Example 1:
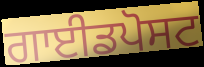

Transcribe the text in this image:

ਗਾਈਡਪੋਸਟ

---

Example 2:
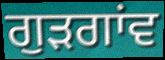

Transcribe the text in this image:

ਗੁਡ਼ਗਾਂਵ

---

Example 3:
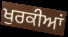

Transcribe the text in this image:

ਖੁਰਕੀਆਂ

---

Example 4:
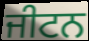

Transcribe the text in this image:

ਜੀਟਨ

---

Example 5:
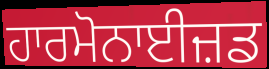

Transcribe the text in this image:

ਹਾਰਮੋਨਾਈਜ਼ਡ